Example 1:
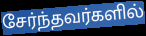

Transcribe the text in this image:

சேர்ந்தவர்களில்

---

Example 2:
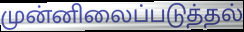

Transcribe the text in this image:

முன்னிலைப்படுத்தல்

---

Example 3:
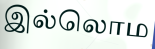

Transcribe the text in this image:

இல்லொம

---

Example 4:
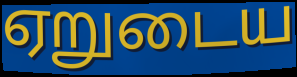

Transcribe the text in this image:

ஏறுடைய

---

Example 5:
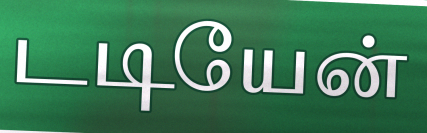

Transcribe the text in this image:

டடியேன்